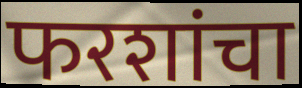
फरशांचा